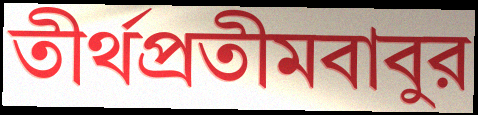
তীর্থপ্রতীমবাবুর